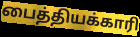
பைத்தியக்காரி